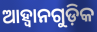
ଆହ୍ବାନଗୁଡ଼ିକ